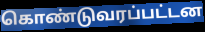
கொண்டுவரப்பட்டன